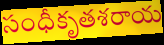
సంధీకృతశరాయ